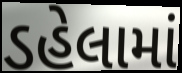
ડહેલામાં